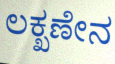
ಲಕ್ಖಣೇನ